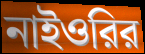
নাইওরির